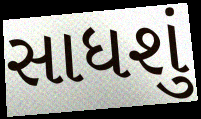
સાધશું